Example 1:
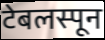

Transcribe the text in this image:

टेबलस्पून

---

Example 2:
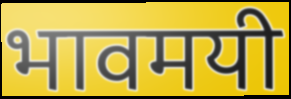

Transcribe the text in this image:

भावमयी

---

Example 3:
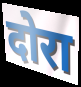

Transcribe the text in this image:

दोरा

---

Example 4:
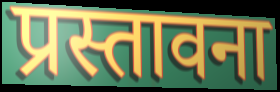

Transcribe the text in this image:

प्रस्तावना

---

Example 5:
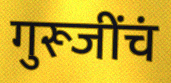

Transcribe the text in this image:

गुरूजींचं